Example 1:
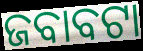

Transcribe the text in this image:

ଜବାବଟା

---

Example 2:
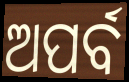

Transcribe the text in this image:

ଅପର୍ବ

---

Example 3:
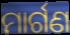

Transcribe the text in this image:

ମାର୍ଗଣ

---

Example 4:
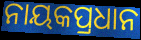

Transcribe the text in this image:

ନାୟକପ୍ରଧାନ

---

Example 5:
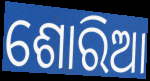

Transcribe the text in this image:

ଶୋରିଆ